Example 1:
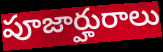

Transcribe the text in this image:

పూజార్హురాలు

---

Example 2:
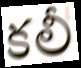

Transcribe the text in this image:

కలీ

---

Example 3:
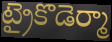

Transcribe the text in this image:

ట్రైకొడెర్మా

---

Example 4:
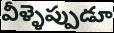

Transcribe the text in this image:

వీళ్ళెప్పుడూ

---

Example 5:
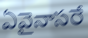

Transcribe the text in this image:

ఏవైనాసరే